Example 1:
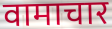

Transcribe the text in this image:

वामाचार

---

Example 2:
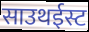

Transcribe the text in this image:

साउथईस्ट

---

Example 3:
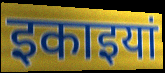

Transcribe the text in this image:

इकाइयां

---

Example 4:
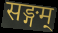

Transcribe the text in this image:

सङ्गम्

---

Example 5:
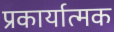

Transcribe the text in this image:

प्रकार्यात्मक